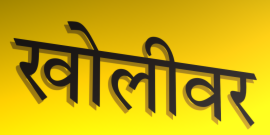
खोलीवर